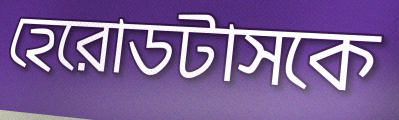
হেরোডটাসকে